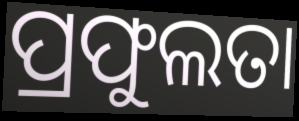
ପ୍ରଫୁଲତା